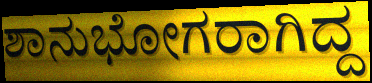
ಶಾನುಭೋಗರಾಗಿದ್ದ